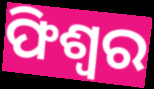
ଫିଶ୍ୱର